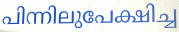
പിന്നിലുപേക്ഷിച്ച